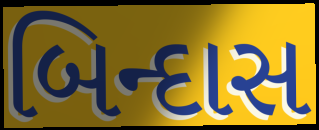
બિન્દાસ